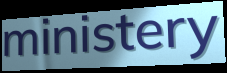
ministery